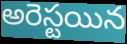
అరెస్టయిన